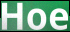
Hoe